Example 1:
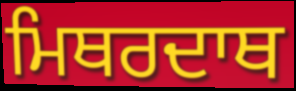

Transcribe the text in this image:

ਮਿਥਰਦਾਥ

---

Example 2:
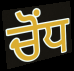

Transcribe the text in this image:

ਚੋਂਧ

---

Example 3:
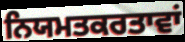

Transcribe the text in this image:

ਨਿਯਮਤਕਰਤਾਵਾਂ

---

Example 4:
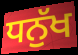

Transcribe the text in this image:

ਧਨੁੱਖ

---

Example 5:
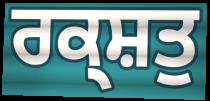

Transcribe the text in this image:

ਰਕ੍ਸ਼ਤੁ